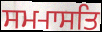
ਸਮ੍ਮਾਸਤਿ